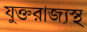
যুক্তরাজ্যস্থ